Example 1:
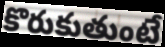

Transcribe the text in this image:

కొరుకుతుంటే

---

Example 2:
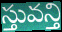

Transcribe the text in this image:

స్తువన్తి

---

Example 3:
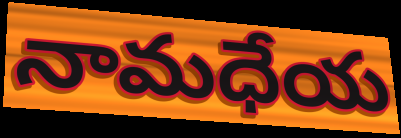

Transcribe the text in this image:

నామధేయ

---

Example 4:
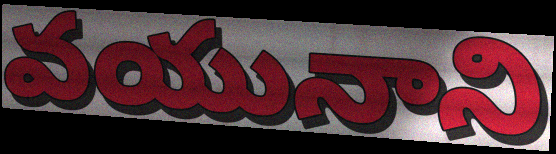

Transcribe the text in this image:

వయునాని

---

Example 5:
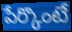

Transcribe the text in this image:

పేర్కొంటే